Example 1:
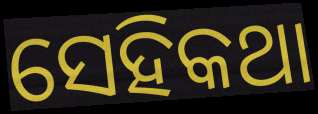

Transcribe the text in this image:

ସେହିକଥା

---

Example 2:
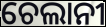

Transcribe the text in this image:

ଚେଲାନୀ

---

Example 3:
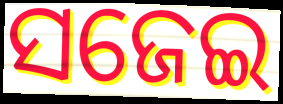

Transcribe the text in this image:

ସଜେଇ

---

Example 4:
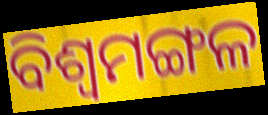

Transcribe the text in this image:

ବିଶ୍ୱମଙ୍ଗଳ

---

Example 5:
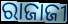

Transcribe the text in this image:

ରାଜାଜୀ